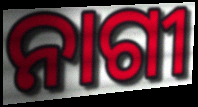
ନାଗୀ